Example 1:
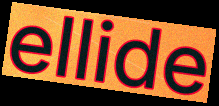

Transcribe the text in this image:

ellide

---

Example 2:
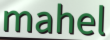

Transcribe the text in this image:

mahel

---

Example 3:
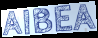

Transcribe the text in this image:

AIBEA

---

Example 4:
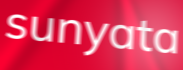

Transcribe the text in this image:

sunyata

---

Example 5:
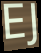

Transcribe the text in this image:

EJ